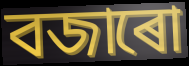
বজাৰো